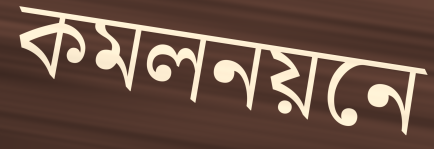
কমলনয়নে